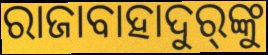
ରାଜାବାହାଦୁର୍‍ଙ୍କୁ